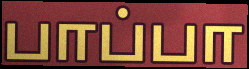
பாப்பா